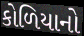
કોળિયાનો